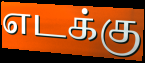
எடக்கு